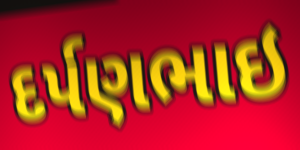
દર્પણભાઇ